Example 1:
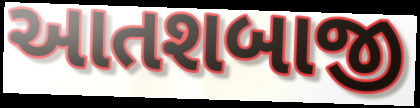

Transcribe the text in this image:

આતશબાજી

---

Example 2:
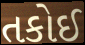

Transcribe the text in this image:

તકોઈ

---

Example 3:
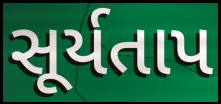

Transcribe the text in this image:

સૂર્યતાપ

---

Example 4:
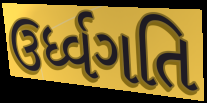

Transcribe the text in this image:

ઉર્ધ્વગતિ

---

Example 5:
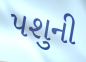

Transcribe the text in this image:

પશુની